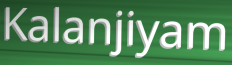
Kalanjiyam